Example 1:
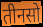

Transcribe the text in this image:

तीनसो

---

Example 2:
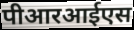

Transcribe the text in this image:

पीआरआईएस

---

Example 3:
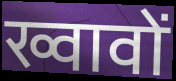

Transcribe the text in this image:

ख्वावों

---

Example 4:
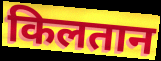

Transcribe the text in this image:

किलतान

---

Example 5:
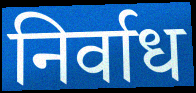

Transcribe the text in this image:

निर्वाध